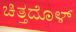
ಚಿತ್ತದೊಳ್